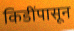
किडींपासून